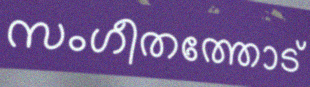
സംഗീതത്തോട്